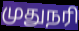
முதுநரி